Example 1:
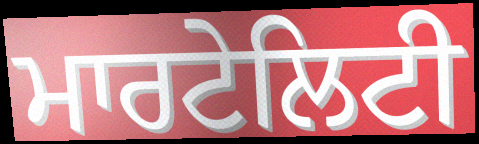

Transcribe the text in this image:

ਮਾਰਟੇਲਿਟੀ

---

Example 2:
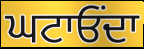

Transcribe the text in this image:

ਘਟਾਓਂਦਾ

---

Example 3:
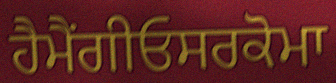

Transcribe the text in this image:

ਹੈਮੈਂਗੀਓਸਰਕੋਮਾ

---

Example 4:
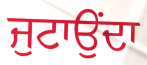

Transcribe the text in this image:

ਜੁਟਾਉਂਦਾ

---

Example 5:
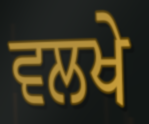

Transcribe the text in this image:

ਵਲਖੇ